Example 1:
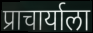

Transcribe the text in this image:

प्राचार्याला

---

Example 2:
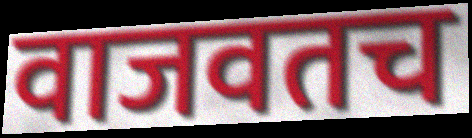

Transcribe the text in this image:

वाजवतच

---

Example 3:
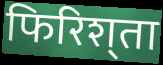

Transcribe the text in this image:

फिरिश्ता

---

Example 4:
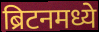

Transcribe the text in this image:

ब्रिटनमध्ये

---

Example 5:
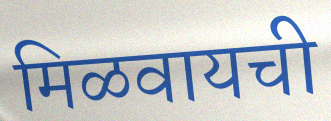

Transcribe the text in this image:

मिळवायची